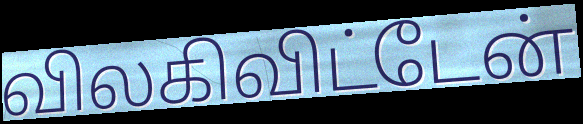
விலகிவிட்டேன்